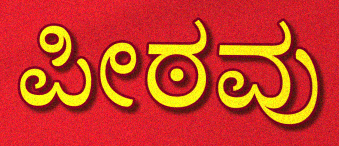
ಪೀಠವು